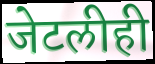
जेटलीही